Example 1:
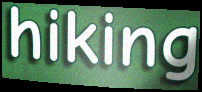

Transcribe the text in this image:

hiking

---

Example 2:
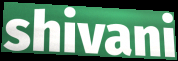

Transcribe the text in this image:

shivani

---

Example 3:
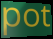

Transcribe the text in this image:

pot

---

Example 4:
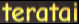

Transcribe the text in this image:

teratai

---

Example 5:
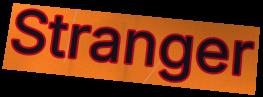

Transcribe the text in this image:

Stranger